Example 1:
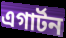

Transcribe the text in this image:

এগার্টন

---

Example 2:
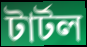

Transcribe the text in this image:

টার্টল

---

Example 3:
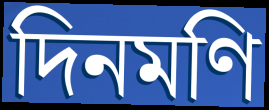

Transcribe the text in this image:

দিনমণি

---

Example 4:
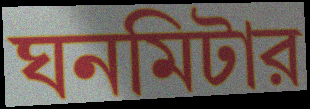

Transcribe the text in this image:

ঘনমিটার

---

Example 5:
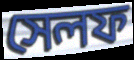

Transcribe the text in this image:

সেলফ